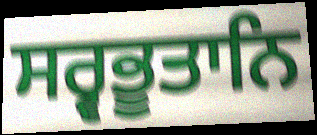
ਸਰ੍ਵਭੂਤਾਨਿ